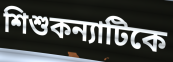
শিশুকন্যাটিকে